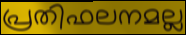
പ്രതിഫലനമല്ല